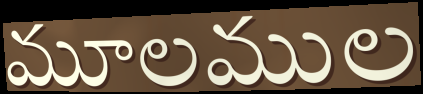
మూలముల